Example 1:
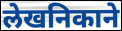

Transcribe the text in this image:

लेखनिकाने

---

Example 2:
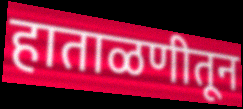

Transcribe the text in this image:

हाताळणीतून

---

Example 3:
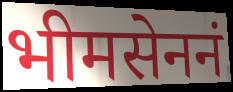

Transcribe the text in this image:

भीमसेननं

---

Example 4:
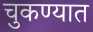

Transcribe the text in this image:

चुकण्यात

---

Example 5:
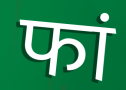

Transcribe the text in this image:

फां